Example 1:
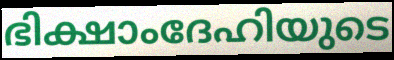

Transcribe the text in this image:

ഭിക്ഷാംദേഹിയുടെ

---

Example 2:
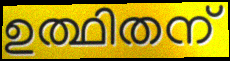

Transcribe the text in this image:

ഉത്ഥിതന്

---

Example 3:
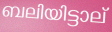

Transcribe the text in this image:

ബലിയിട്ടാല്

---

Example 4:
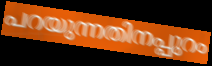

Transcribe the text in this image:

പറയുന്നതിനപ്പുറം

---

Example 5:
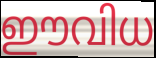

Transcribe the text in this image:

ഈവിധ